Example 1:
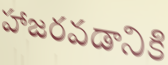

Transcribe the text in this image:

హాజరవడానికి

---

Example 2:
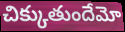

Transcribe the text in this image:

చిక్కుతుందేమో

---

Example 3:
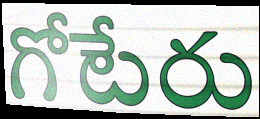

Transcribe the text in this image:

గోటేరు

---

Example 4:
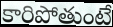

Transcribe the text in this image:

కారిపోతుంటే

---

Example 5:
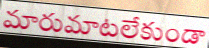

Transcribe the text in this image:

మారుమాటలేకుండా